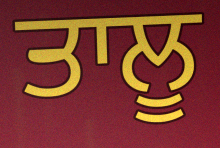
ਤਾਲੂ